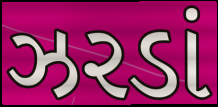
ઝરડાં